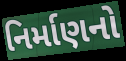
નિર્માણનો